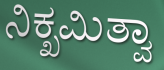
ನಿಕ್ಖಮಿತ್ವಾ